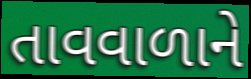
તાવવાળાને